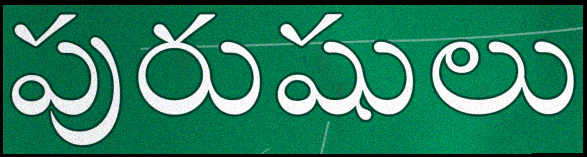
పురుషులు